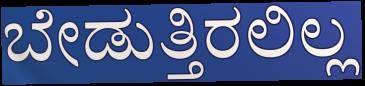
ಬೇಡುತ್ತಿರಲಿಲ್ಲ